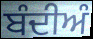
ਬੰਦੀਅੰ